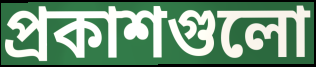
প্রকাশগুলো